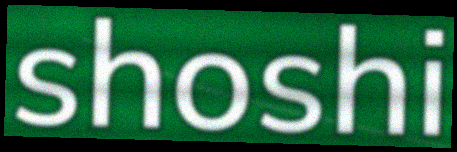
shoshi